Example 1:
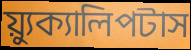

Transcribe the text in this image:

য়্যুক্যালিপটাস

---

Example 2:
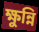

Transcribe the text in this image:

ক্ষুন্নি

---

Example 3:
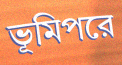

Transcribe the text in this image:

ভূমিপরে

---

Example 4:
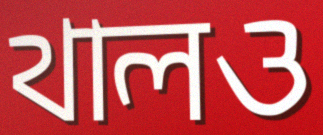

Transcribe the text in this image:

থালও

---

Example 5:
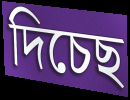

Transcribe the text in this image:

দিচেছ